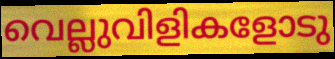
വെല്ലുവിളികളോടു